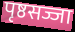
पृष्ठसज्जा